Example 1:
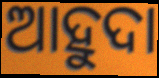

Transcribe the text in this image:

ଆହୁଦା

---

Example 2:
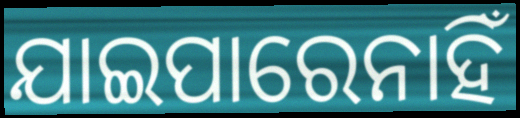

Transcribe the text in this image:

ଯାଇପାରେନାହିଁ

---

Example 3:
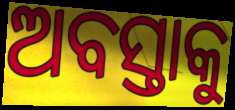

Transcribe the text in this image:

ଅବସ୍ତାକୁ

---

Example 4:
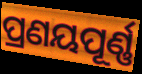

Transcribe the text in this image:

ପ୍ରଣୟପୂର୍ଣ୍ଣ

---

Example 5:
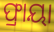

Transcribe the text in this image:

ଫ୍ରାୟା